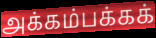
அக்கம்பக்கக்